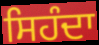
ਸਿਹੰਦਾ